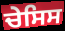
ਚੇਸਿਸ